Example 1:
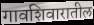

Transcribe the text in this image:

गावशिवारातील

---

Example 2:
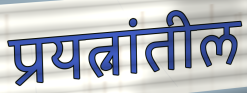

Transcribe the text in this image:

प्रयत्नांतील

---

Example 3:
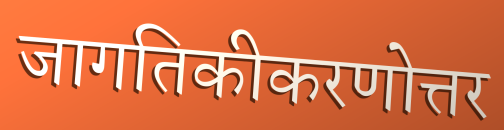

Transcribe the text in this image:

जागतिकीकरणोत्तर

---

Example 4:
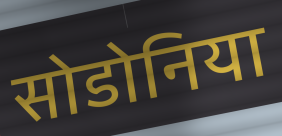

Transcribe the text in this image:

सोडोनिया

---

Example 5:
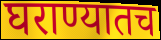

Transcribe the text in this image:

घराण्यातच